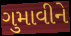
ગુમાવીને